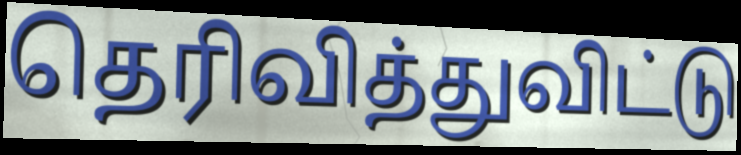
தெரிவித்துவிட்டு